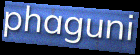
phaguni